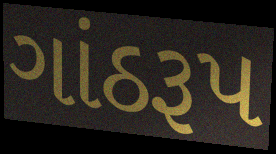
ગાંઠરૂપ